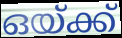
ഒയ്ക്ക്